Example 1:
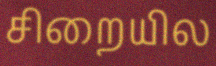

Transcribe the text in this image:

சிறையில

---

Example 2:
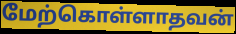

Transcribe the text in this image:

மேற்கொள்ளாதவன்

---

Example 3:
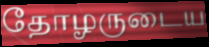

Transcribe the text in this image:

தோழருடைய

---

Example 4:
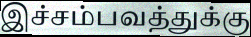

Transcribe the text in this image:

இச்சம்பவத்துக்கு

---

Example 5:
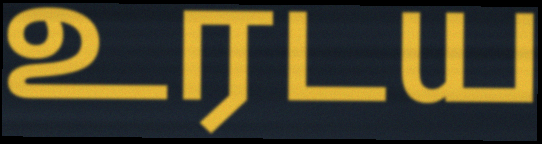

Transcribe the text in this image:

உரடய